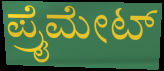
ಪ್ರೈಮೇಟ್